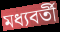
মধ্যবর্তী